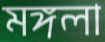
মঙ্গলা